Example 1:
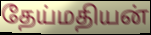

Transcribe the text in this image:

தேய்மதியன்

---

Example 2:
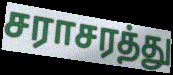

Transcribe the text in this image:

சராசரத்து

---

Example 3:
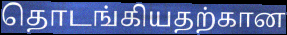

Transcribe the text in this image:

தொடங்கியதற்கான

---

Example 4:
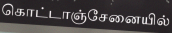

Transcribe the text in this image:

கொட்டாஞ்சேனையில்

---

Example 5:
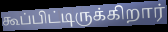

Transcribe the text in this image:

கூப்பிட்டிருக்கிறார்